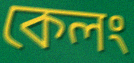
কেলং